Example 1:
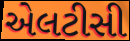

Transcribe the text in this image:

એલટીસી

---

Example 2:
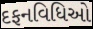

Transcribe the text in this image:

દફનવિધિઓ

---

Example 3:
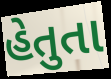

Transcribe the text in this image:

હેતુતા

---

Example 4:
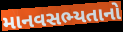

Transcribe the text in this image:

માનવસભ્યતાનો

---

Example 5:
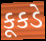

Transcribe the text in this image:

કૂકડે